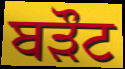
ਬੜੌਟ